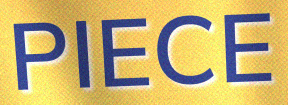
PIECE